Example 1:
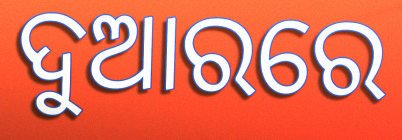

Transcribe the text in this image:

ଦୁଆରରେ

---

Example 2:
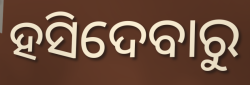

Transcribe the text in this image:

ହସିଦେବାରୁ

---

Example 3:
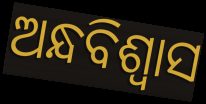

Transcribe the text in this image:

ଅନ୍ଧବିଶ୍ବାସ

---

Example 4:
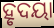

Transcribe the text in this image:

ହୃଦୟା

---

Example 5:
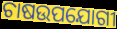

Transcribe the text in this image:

ଚାଷଉପଯୋଗୀ